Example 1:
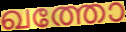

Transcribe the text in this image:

ഖത്തോ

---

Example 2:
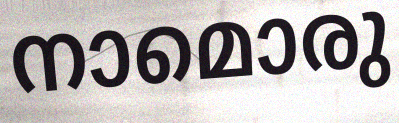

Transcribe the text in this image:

നാമൊരു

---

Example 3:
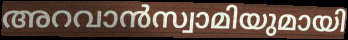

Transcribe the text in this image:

അറവാൻസ്വാമിയുമായി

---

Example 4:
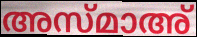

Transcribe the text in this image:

അസ്മാഅ്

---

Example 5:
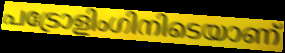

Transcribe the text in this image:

പട്രോളിംഗിനിടെയാണ്